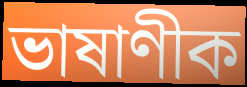
ভাষাণীক